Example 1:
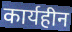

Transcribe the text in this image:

कार्यहीन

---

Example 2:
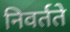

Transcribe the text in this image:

निवर्तते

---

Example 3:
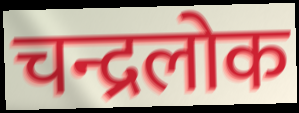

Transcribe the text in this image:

चन्द्रलोक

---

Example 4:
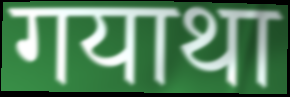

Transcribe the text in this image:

गयाथा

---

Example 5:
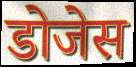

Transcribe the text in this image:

डोजेस